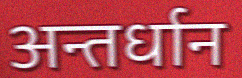
अन्तर्धान